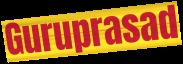
Guruprasad